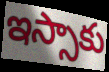
ఇస్సాకు